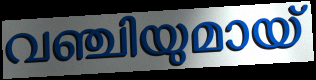
വഞ്ചിയുമായ്